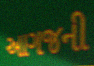
આગજની